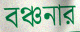
বঞ্চনার